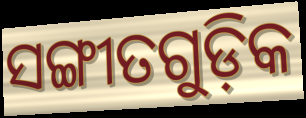
ସଙ୍ଗୀତଗୁଡ଼ିକ